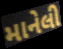
માનેલી